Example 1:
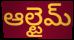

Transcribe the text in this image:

ఆల్టైమ్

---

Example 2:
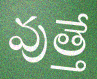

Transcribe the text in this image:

వుత్తే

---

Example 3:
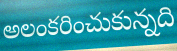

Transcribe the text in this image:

అలంకరించుకున్నది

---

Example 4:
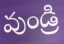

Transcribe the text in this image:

వుండ్రి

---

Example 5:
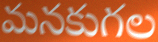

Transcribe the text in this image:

మనకుగల